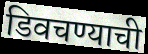
डिवचण्याची